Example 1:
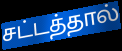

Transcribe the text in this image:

சட்டத்தால்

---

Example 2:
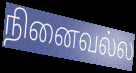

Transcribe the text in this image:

நினைவல்ல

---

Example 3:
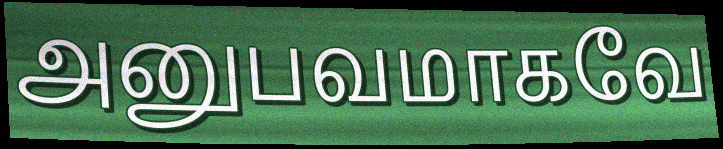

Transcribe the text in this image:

அனுபவமாகவே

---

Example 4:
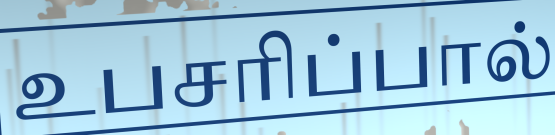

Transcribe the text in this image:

உபசரிப்பால்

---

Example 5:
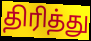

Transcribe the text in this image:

திரித்து